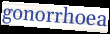
gonorrhoea